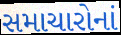
સમાચારોનાં